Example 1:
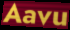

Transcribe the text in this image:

Aavu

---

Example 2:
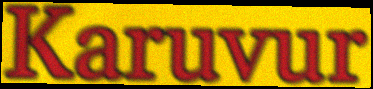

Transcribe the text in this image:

Karuvur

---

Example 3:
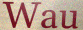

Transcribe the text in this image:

Wau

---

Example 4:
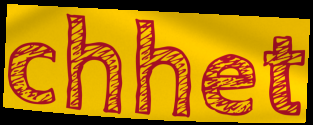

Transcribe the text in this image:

chhet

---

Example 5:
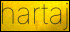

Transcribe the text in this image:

hartaj